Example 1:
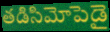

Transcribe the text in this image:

తడిసిమోపెడై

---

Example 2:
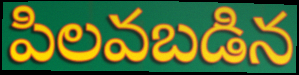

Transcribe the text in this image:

పిలవబడిన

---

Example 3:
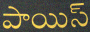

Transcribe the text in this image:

పాయిస్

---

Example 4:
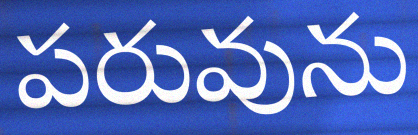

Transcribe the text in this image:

పరువును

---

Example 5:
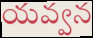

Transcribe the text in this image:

యవ్వన